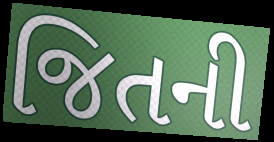
જિતની